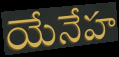
యేనేహ